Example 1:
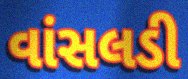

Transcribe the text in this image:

વાંસલડી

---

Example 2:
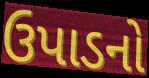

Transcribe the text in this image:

ઉપાડનો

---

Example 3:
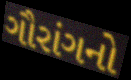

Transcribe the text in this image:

ગૌરાંગનો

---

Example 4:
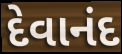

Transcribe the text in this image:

દેવાનંદ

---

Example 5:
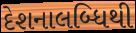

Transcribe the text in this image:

દેશનાલબ્ધિથી